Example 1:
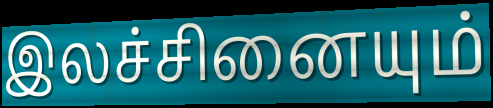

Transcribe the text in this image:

இலச்சினையும்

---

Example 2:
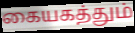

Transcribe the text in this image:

கையகத்தும்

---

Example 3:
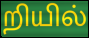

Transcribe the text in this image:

றியில்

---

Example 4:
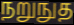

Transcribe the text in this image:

நறுநுத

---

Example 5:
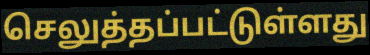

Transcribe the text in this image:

செலுத்தப்பட்டுள்ளது